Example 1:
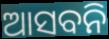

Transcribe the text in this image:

ଆସବନି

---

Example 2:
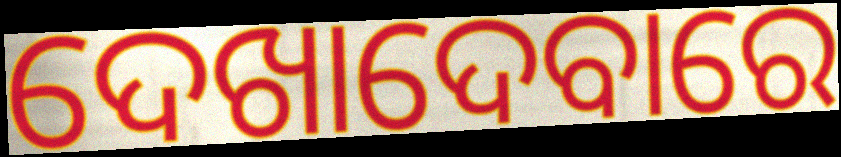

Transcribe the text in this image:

ଦେଖାଦେବାରେ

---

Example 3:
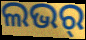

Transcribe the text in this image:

ଲଭର୍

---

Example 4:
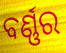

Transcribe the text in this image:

ବର୍ଣ୍ଣର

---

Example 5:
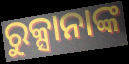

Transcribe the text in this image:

ରୁକ୍ସାନାଙ୍କ